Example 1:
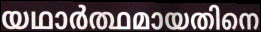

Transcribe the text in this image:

യഥാർത്ഥമായതിനെ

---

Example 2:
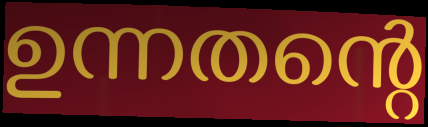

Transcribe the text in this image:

ഉന്നതന്റെ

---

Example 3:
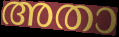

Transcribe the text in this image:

അതാ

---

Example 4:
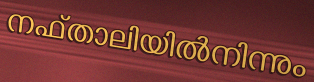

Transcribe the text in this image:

നഫ്താലിയിൽനിന്നും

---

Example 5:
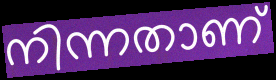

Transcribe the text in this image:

നിന്നതാണ്